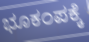
ಭೂಕಂಪಕ್ಕೆ